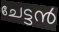
ചേട്ടൻ